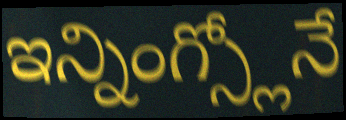
ఇన్నింగ్స్లోనే